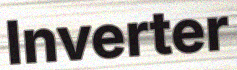
Inverter